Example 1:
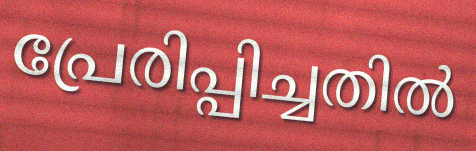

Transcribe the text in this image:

പ്രേരിപ്പിച്ചതിൽ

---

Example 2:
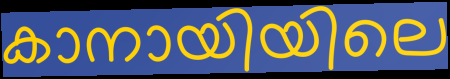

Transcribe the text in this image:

കാനായിയിലെ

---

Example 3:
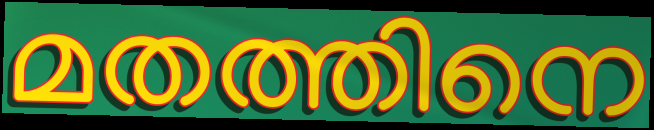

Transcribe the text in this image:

മതത്തിനെ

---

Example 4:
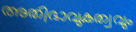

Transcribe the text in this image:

അതിഭാവുകത്വവും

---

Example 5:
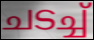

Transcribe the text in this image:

ചടച്ച്